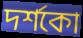
দৰ্শকো